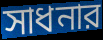
সাধনার